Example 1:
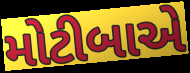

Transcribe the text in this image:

મોટીબાએ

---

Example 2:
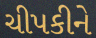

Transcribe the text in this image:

ચીપકીને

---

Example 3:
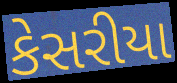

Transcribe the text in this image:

કેસરીયા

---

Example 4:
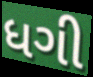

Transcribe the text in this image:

ધગી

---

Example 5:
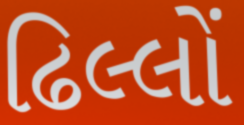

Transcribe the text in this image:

ઢિલ્લોં